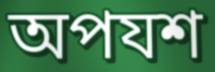
অপযশ